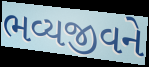
ભવ્યજીવને